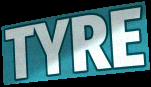
TYRE